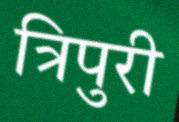
त्रिपुरी